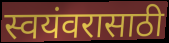
स्वयंवरासाठी